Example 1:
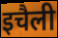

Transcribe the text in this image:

इचैली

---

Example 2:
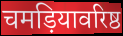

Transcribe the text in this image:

चमड़ियावरिष्ठ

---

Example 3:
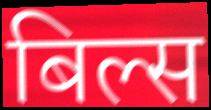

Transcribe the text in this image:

बिल्स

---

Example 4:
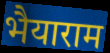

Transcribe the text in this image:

भैयाराम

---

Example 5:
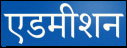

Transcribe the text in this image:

एडमीशन